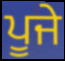
ਪੂਜੇ